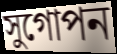
সুগোপন